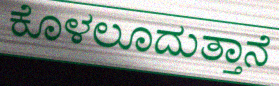
ಕೊಳಲೂದುತ್ತಾನೆ